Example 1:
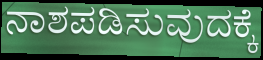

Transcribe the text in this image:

ನಾಶಪಡಿಸುವುದಕ್ಕೆ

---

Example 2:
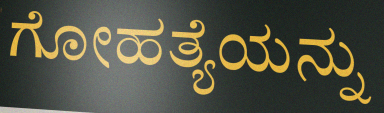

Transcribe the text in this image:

ಗೋಹತ್ಯೆಯನ್ನು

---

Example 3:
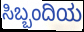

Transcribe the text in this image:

ಸಿಬ್ಬಂದಿಯ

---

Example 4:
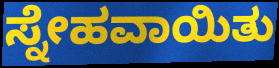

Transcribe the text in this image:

ಸ್ನೇಹವಾಯಿತು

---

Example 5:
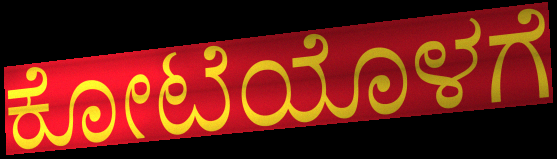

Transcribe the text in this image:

ಕೋಟೆಯೊಳಗೆ